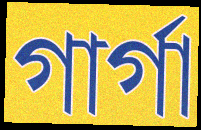
গার্গা